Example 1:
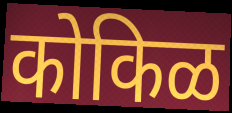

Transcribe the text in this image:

कोकिळ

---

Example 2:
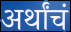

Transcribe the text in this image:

अर्थांचं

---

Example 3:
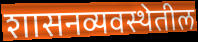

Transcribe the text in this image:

शासनव्यवस्थेतील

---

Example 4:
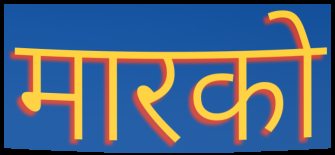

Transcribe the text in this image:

मारको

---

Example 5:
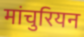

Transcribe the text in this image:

मांचुरियन